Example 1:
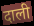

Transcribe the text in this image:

दाली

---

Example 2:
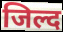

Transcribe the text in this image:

जिल्द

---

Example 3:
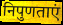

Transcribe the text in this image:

निपुणताएं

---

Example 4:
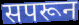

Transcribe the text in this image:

सपरून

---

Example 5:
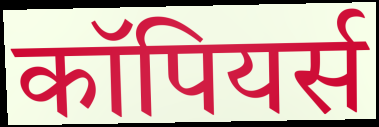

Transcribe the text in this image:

कॉपियर्स